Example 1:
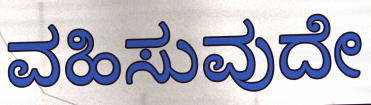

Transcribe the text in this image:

ವಹಿಸುವುದೇ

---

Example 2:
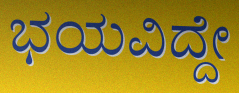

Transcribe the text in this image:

ಭಯವಿದ್ದೇ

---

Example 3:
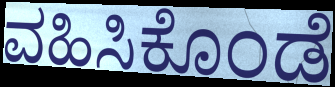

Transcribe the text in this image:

ವಹಿಸಿಕೊಂಡೆ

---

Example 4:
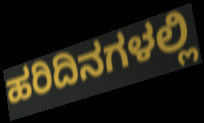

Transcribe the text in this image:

ಹರಿದಿನಗಳಲ್ಲಿ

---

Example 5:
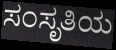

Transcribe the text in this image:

ಸಂಸೃತಿಯ